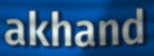
akhand